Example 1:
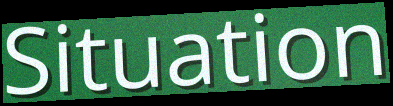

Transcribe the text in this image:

Situation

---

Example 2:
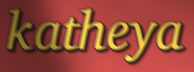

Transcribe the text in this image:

katheya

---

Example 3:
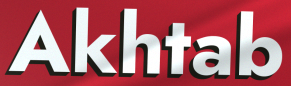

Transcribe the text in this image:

Akhtab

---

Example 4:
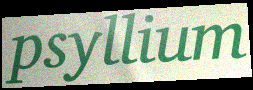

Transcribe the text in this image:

psyllium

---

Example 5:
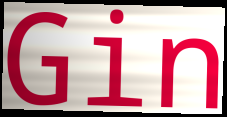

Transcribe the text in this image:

Gin